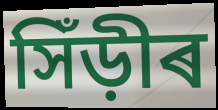
সিঁড়ীৰ